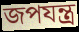
জপযন্ত্র